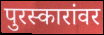
पुरस्कारांवर